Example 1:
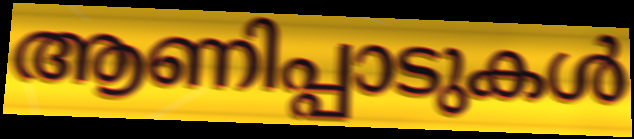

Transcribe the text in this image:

ആണിപ്പാടുകൾ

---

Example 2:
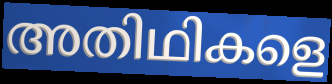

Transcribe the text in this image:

അതിഥികളെ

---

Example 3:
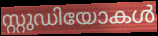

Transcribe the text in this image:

സ്റ്റുഡിയോകൾ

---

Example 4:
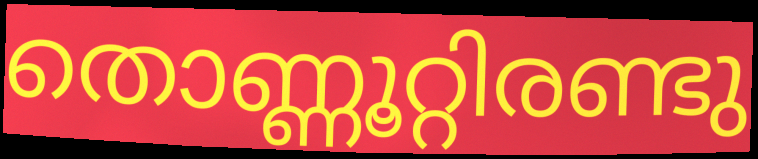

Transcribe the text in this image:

തൊണ്ണൂറ്റിരണ്ടു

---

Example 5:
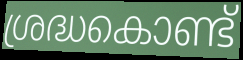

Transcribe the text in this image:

ശ്രദ്ധകൊണ്ട്